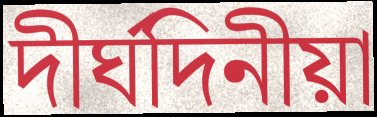
দীৰ্ঘদিনীয়া